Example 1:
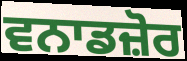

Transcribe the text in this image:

ਵਨਾਡਜ਼ੋਰ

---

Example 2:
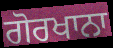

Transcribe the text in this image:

ਗੋਰਖਾਨਾ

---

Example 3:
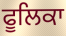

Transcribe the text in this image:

ਫੂਲਿਕਾ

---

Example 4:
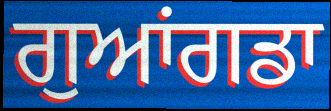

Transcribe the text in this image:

ਗੁਆਂਗਡਾ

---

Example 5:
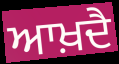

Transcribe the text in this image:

ਆਖ਼ਦੈ